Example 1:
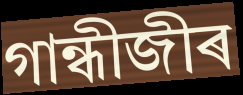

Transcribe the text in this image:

গান্ধীজীৰ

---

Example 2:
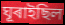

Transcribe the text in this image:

ঘূৰাইছিল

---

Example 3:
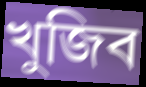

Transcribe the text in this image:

খুজিব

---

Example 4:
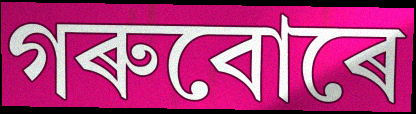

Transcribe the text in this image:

গৰুবোৰে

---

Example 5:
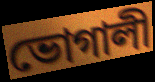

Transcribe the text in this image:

ভোগালী